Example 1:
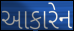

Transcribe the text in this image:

આકારેન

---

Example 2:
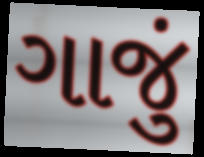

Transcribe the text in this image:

ગાજું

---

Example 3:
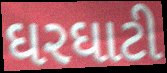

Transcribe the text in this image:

ઘરઘાટી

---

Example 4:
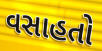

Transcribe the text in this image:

વસાહતો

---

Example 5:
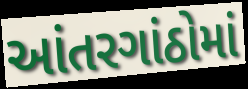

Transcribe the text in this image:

આંતરગાંઠોમાં